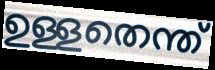
ഉള്ളതെന്ത്